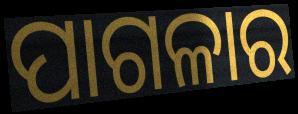
ପାଗଳାର